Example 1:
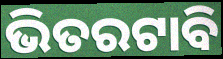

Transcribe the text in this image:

ଭିତରଟାବି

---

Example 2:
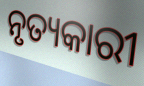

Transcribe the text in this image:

ନୃତ୍ୟକାରୀ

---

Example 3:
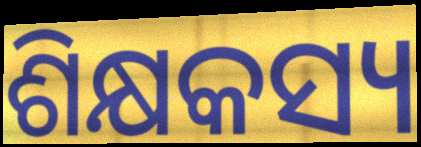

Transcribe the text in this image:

ଶିକ୍ଷକସ୍ୟ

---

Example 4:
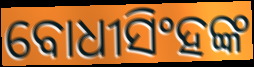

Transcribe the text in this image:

ବୋଧୀସିଂହଙ୍କ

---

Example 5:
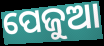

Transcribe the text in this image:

ପେଜୁଆ